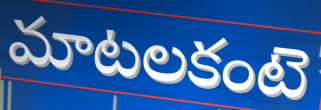
మాటలకంటె